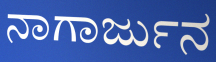
ನಾಗಾರ್ಜುನ